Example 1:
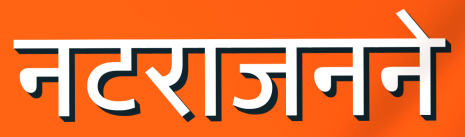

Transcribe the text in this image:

नटराजनने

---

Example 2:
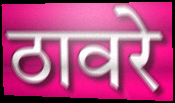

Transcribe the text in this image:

ठावरे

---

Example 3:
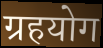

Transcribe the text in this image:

ग्रहयोग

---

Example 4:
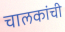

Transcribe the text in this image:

चालकांची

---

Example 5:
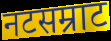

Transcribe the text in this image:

नटसम्राट